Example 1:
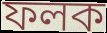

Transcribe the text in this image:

ফলক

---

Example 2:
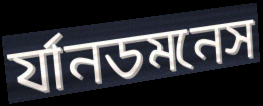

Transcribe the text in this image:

র্যানডমনেস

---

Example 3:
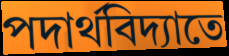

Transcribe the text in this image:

পদার্থবিদ্যাতে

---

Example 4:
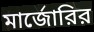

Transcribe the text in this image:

মার্জোরির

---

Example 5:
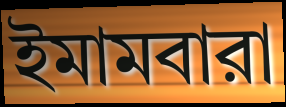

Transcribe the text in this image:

ইমামবারা